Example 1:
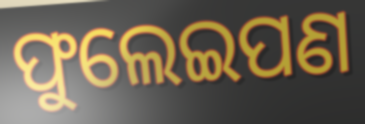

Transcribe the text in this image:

ଫୁଲେଇପଣ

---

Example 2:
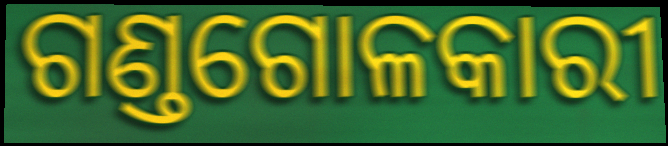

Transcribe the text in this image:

ଗଣ୍ଡଗୋଳକାରୀ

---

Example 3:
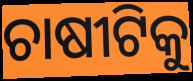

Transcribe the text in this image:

ଚାଷୀଟିକୁ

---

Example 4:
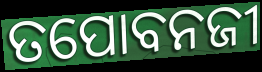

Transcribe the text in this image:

ତପୋବନଜୀ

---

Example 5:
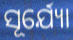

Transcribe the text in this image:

ସୂର୍ଯ୍ୟୋ